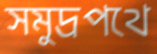
সমুদ্রপথে